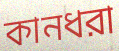
কানধরা